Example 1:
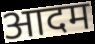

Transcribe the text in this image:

आदम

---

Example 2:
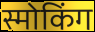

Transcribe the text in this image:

स्‍मोकिंग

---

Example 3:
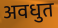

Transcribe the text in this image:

अवधुत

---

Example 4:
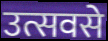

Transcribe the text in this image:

उत्सवसे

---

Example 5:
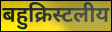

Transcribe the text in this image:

बहुक्रिस्टलीय